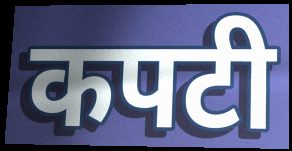
कपटी